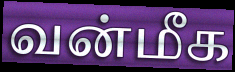
வன்மீக